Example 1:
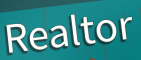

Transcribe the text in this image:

Realtor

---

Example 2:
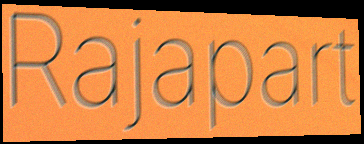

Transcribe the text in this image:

Rajapart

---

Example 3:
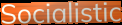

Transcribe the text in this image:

Socialistic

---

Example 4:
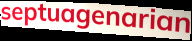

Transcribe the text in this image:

septuagenarian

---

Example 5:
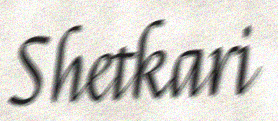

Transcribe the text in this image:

Shetkari